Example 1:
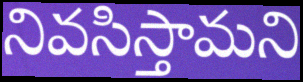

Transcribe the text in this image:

నివసిస్తామని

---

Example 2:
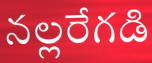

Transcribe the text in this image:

నల్లరేగడి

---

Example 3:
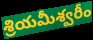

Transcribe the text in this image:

శ్రియమీశ్వరీం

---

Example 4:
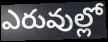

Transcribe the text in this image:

ఎరువుల్లో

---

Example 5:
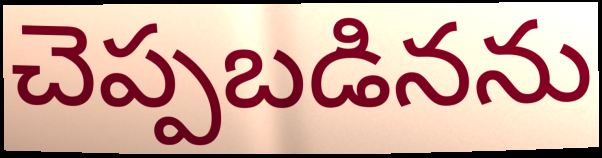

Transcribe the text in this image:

చెప్పబడినను